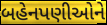
બહેનપણીઓને